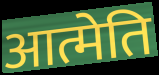
आत्मेति